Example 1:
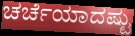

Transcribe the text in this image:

ಚರ್ಚೆಯಾದಷ್ಟು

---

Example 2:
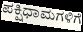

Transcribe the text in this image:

ಪಕ್ಷಿಧಾಮಗಳಿಗೆ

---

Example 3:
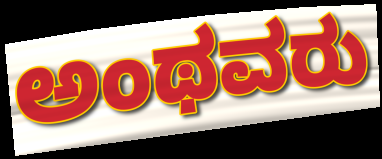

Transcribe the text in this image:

ಅಂಥವರು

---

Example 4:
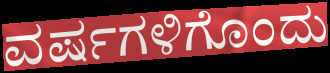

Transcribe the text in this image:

ವರ್ಷಗಳಿಗೊಂದು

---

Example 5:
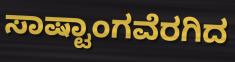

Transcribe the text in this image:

ಸಾಷ್ಟಾಂಗವೆರಗಿದ